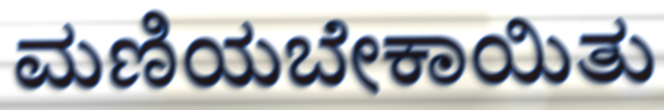
ಮಣಿಯಬೇಕಾಯಿತು